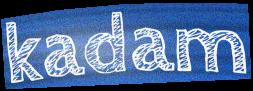
kadam